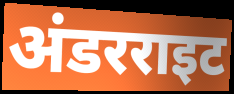
अंडरराइट